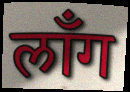
लाँग